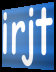
irjt